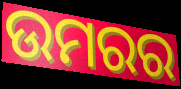
ଉମରର